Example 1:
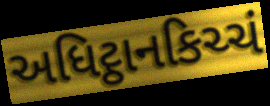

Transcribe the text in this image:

અધિટ્ઠાનકિચ્ચં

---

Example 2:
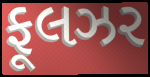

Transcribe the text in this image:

ફૂલઝર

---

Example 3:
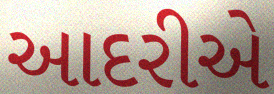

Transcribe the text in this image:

આદરીએ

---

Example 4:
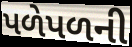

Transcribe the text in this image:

પળેપળની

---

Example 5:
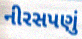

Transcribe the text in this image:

નીરસપણું